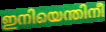
ഇനിയെന്തിനീ